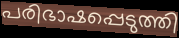
പരിഭാഷപ്പെടുത്തി